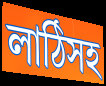
লাঠিসহ